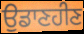
ਉਡਾਣਹੀਣ